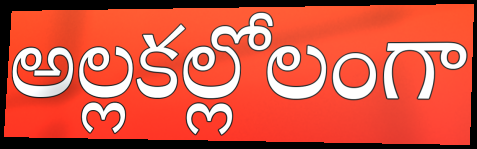
అల్లకల్లోలంగా